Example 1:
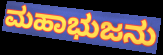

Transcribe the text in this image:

ಮಹಾಭುಜನು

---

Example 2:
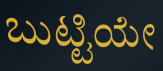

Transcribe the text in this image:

ಬುಟ್ಟಿಯೇ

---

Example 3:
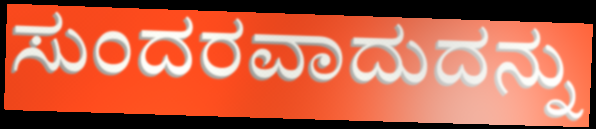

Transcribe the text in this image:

ಸುಂದರವಾದುದನ್ನು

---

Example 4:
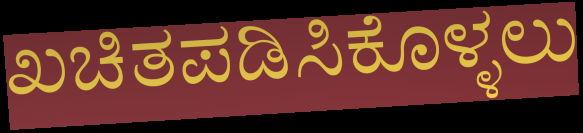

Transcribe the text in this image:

ಖಚಿತಪಡಿಸಿಕೊಳ್ಳಲು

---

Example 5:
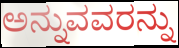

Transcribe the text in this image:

ಅನ್ನುವವರನ್ನು